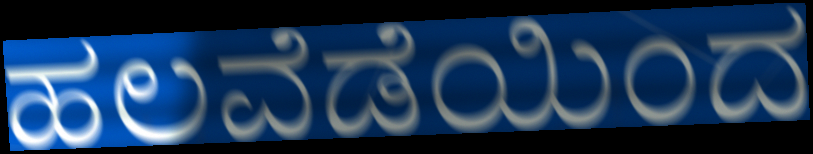
ಹಲವೆಡೆಯಿಂದ